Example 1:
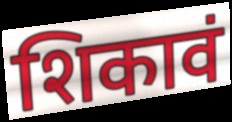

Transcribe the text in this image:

शिकावं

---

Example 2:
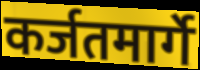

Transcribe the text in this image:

कर्जतमार्गे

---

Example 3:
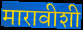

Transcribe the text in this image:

मारावीशी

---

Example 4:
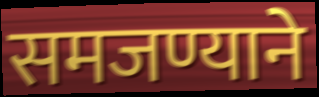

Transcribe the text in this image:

समजण्याने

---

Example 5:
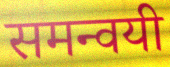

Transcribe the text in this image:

समन्वयी